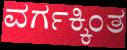
ವರ್ಗಕ್ಕಿಂತ